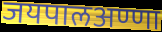
जयपालअण्णा